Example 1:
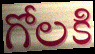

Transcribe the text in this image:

గోలకి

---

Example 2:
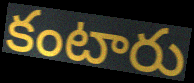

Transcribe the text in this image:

కంటారు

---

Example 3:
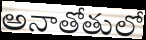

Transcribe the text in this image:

అనాతోతులో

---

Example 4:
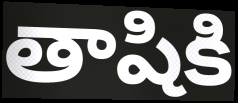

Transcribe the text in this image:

తాషికి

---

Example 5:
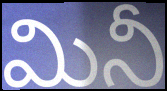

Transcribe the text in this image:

మినీ